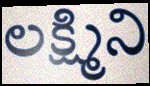
లక్ష్మిని